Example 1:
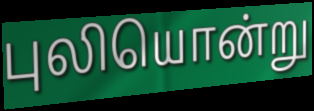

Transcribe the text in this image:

புலியொன்று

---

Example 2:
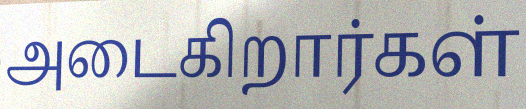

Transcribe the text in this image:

அடைகிறார்கள்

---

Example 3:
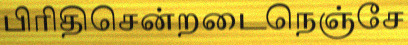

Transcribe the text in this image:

பிரிதிசென்றடைநெஞ்சே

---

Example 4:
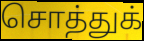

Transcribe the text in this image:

சொத்துக்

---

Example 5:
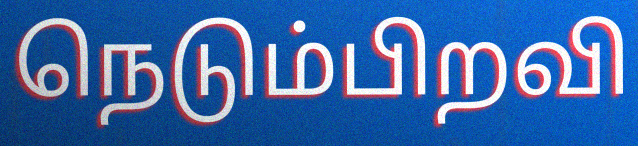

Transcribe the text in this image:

நெடும்பிறவி